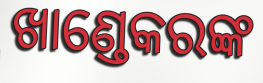
ଖାଣ୍ଡେକରଙ୍କ